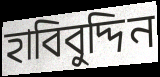
হাবিবুদ্দিন